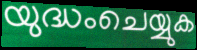
യുദ്ധംചെയ്യുക